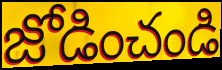
జోడించండి